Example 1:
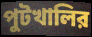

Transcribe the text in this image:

পুটখালির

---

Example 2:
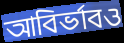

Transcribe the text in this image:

আবির্ভাবও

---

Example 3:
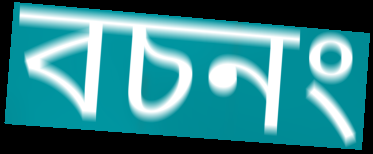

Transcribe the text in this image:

বচনং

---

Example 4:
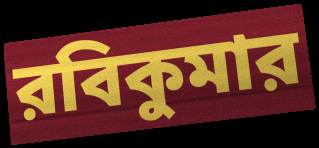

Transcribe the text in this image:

রবিকুমার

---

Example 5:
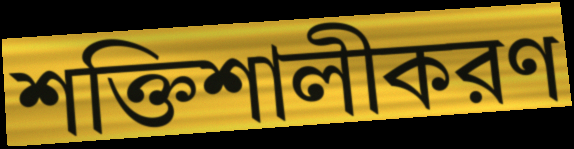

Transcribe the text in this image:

শক্তিশালীকরণ